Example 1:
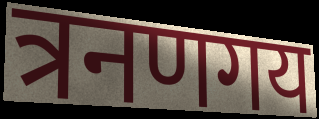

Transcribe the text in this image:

त्रनणगय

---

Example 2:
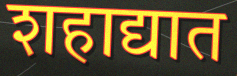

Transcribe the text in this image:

शहाद्यात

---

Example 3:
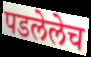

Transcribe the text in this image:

पडलेलेच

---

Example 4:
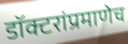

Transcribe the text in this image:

डॉक्टरांप्रमाणेच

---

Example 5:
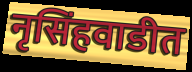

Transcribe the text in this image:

नृसिंहवाडीत